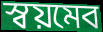
স্বয়মেব